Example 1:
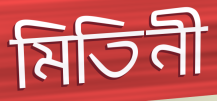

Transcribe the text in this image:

মিতিনী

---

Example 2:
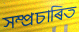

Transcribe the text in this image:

সম্প্ৰচাৰিত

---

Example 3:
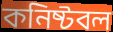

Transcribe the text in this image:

কনিষ্টবল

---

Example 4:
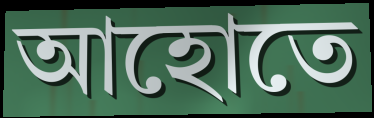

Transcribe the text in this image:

আহোতে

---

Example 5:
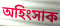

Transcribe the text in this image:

অহিংসাক